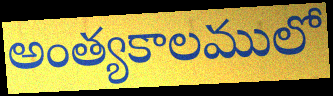
అంత్యకాలములో